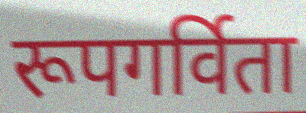
रूपगर्विता